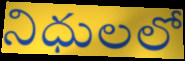
నిధులలో